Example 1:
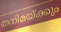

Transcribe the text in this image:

തനിമയ്ക്കും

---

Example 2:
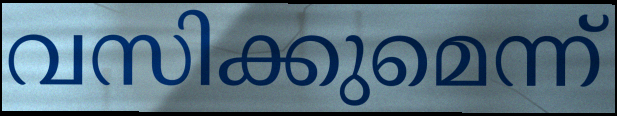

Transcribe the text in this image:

വസിക്കുമെന്ന്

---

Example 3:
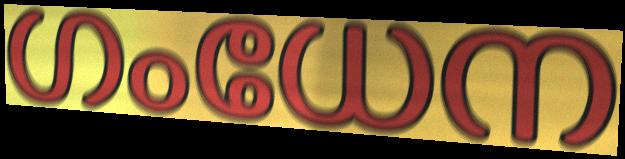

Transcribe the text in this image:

ഗംധേന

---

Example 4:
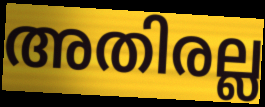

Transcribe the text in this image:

അതിരല്ല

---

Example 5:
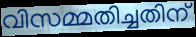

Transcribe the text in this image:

വിസമ്മതിച്ചതിന്